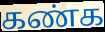
கண்க